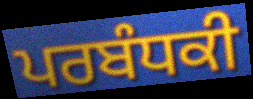
ਪਰਬੰਧਕੀ